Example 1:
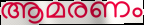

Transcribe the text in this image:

ആമരണം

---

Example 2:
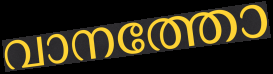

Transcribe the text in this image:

വാനത്തോ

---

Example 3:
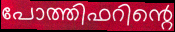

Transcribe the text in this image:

പോത്തിഫറിന്റെ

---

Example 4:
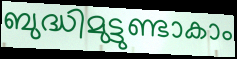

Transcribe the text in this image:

ബുദ്ധിമുട്ടുണ്ടാകാം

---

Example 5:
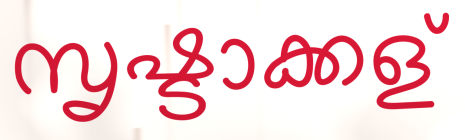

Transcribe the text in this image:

സൃഷ്ടാക്കള്